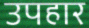
उपहार